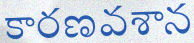
కారణవశాన